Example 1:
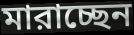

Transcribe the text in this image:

মারাচ্ছেন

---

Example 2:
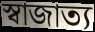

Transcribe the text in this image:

স্বাজাত্য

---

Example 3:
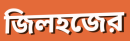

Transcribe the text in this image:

জিলহজের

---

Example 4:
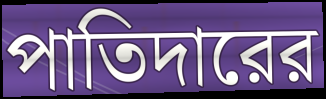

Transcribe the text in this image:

পাতিদারের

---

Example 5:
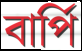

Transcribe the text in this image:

বার্পি